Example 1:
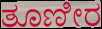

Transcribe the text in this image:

ತೂಣೀರ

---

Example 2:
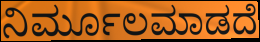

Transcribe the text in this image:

ನಿರ್ಮೂಲಮಾಡದೆ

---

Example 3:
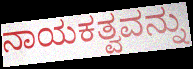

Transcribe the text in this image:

ನಾಯಕತ್ವವನ್ನು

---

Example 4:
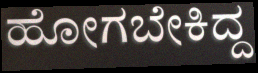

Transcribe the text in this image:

ಹೋಗಬೇಕಿದ್ದ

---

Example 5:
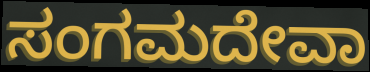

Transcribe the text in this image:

ಸಂಗಮದೇವಾ